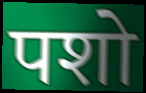
पशो